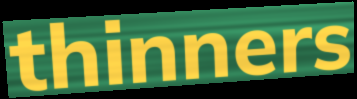
thinners